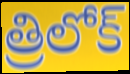
త్రిలోక్